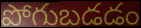
పోగుబడడం